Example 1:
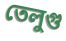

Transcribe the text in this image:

তেলুগু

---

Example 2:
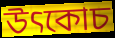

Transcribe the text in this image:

উৎকোচ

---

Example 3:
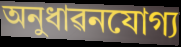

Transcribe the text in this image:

অনুধাৱনযোগ্য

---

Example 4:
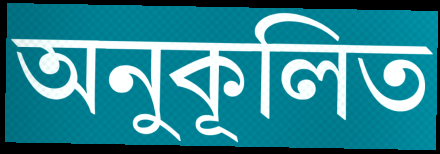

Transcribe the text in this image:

অনুকূলিত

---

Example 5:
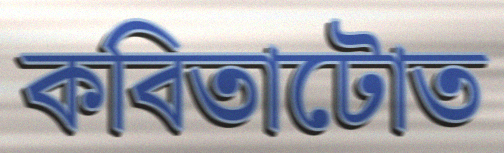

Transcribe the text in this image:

কবিতাটোত